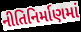
નીતિનિર્માણમાં